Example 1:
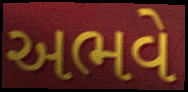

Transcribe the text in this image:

અભવે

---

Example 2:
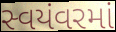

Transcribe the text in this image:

સ્વયંવરમાં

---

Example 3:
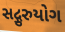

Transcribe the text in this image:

સદ્ગુરુયોગ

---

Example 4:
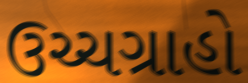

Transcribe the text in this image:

ઉચ્ચગ્રાહો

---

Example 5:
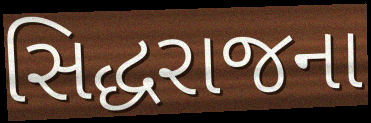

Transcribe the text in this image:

સિદ્ધરાજના